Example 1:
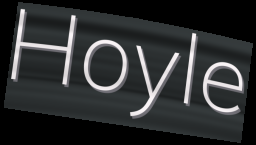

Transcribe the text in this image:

Hoyle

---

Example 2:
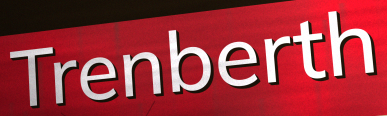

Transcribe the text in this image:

Trenberth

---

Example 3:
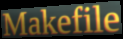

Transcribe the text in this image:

Makefile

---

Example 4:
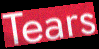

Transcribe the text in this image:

Tears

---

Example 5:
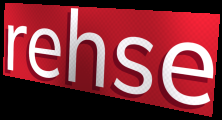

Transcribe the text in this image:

rehse